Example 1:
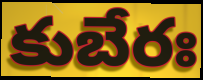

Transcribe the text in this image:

కుబేరః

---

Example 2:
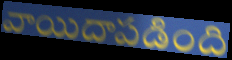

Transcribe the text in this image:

వాయిదాపడింది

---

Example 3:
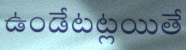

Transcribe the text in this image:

ఉండేటట్లయితే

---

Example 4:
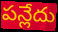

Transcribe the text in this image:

పన్లేదు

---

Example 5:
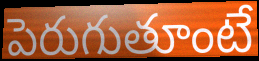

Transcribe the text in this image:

పెరుగుతూంటే